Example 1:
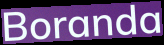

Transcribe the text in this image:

Boranda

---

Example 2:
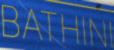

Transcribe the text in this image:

BATHINI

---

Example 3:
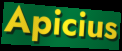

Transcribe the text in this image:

Apicius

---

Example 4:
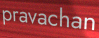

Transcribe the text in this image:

pravachan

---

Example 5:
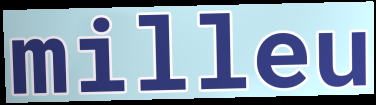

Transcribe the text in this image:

milleu